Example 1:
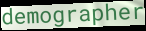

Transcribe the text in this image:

demographer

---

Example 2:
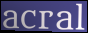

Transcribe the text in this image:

acral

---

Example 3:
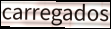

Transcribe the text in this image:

carregados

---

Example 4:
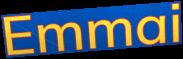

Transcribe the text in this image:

Emmai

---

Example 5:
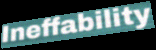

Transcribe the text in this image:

Ineffability